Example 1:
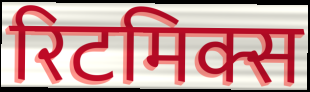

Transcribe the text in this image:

रिटमिक्स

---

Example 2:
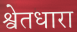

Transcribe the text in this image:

श्वेतधारा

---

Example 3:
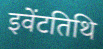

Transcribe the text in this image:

इवेंटतिथि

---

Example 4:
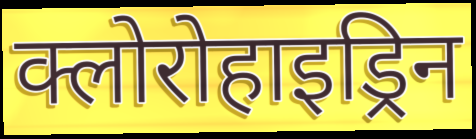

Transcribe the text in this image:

क्लोरोहाइड्रिन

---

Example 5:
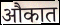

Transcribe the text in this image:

औकात